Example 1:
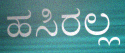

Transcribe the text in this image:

ಹಸಿರಲ್ಲ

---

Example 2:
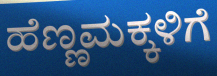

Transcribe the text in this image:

ಹೆಣ್ಣಮಕ್ಕಳಿಗೆ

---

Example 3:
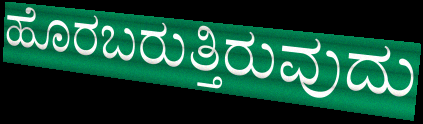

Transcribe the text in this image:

ಹೊರಬರುತ್ತಿರುವುದು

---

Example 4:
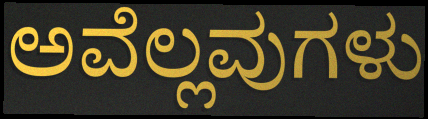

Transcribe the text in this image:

ಅವೆಲ್ಲವುಗಳು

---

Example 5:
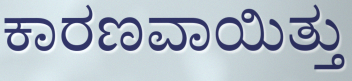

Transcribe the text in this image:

ಕಾರಣವಾಯಿತ್ತು